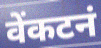
वेंकटनं